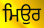
ਮਿਉਰ